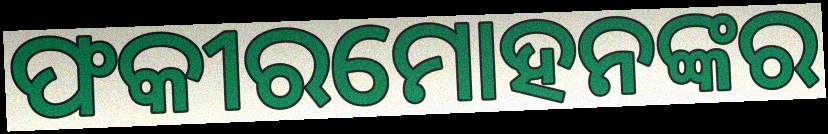
ଫକୀରମୋହନଙ୍କର